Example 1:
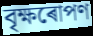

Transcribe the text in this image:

বৃক্ষৰোপণ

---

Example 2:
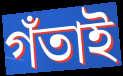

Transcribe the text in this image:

গঁতাই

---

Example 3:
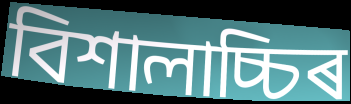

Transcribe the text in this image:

বিশালাচ্চিৰ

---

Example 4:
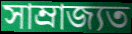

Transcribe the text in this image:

সাম্ৰাজ্যত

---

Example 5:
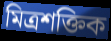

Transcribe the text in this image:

মিত্ৰশক্তিক